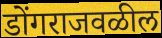
डोंगराजवळील